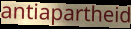
antiapartheid